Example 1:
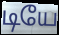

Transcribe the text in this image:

டியே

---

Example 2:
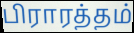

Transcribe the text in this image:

பிராரத்தம்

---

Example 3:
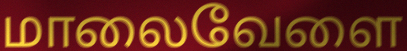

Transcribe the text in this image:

மாலைவேளை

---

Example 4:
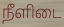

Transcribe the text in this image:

நீளிடை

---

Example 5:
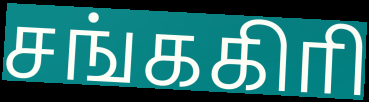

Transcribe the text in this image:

சங்ககிரி